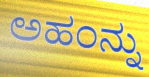
ಅಹಂನ್ನು